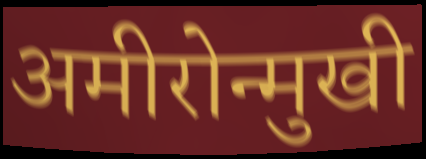
अमीरोन्मुखी